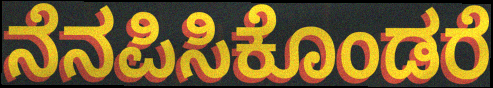
ನೆನಪಿಸಿಕೊಂಡರೆ